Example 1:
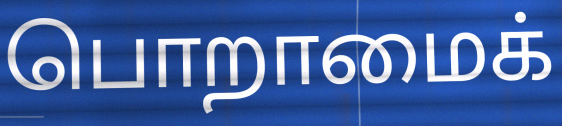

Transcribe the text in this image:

பொறாமைக்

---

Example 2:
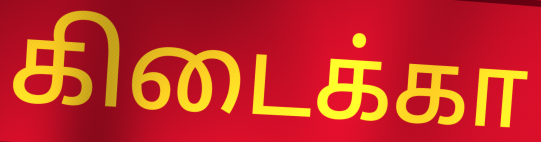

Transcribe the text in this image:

கிடைக்கா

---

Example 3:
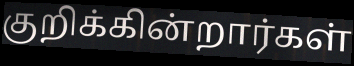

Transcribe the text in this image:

குறிக்கின்றார்கள்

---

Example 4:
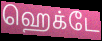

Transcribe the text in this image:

ஹெக்டே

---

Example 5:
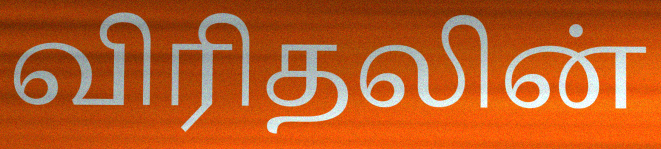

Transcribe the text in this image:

விரிதலின்